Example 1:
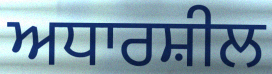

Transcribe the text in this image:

ਅਧਾਰਸ਼ੀਲ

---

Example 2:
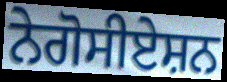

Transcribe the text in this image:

ਨੇਗੋਸੀਏਸ਼ਨ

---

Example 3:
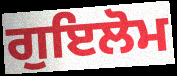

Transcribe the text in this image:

ਗੁਇਲੋਮ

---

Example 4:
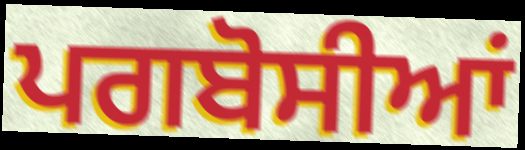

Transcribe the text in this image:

ਪਗਬੋਸੀਆਂ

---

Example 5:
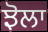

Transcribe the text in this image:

ਝੋਲਾ